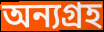
অন্যগ্রহ